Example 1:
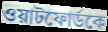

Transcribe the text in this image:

ওয়াটফোর্ডকে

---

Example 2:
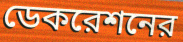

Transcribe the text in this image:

ডেকরেশনের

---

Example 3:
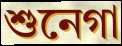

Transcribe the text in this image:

শুনেগা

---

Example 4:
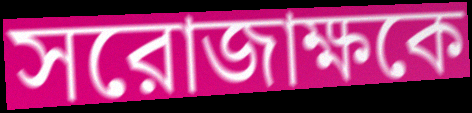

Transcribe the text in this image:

সরোজাক্ষকে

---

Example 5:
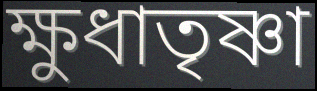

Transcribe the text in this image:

ক্ষুধাতৃষ্ণা